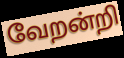
வேறன்றி